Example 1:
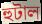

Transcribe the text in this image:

হুটাল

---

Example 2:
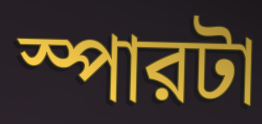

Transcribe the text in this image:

স্পারটা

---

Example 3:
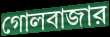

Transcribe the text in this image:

গোলবাজার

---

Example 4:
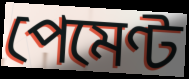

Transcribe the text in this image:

পেমেণ্ট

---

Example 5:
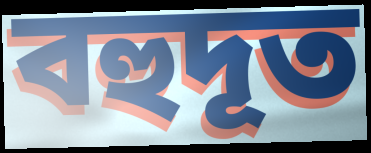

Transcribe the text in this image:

বহুদূত